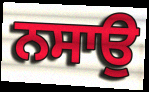
ਨਸਾਉ